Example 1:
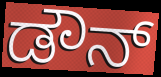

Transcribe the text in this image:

ಡೌನ್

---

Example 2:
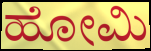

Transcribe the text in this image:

ಹೋಮಿ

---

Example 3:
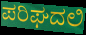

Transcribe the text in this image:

ಪರಿಘದಲಿ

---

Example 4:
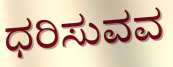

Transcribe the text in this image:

ಧರಿಸುವವ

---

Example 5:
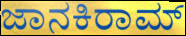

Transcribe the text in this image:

ಜಾನಕಿರಾಮ್